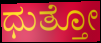
ಧುತ್ತೋ